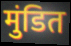
मुंडित